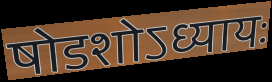
षोडशोऽध्यायः